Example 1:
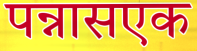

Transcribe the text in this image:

पन्नासएक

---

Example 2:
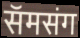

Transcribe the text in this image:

सॅमसंग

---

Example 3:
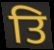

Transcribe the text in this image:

उि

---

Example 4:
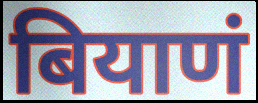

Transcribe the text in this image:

बियाणं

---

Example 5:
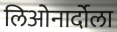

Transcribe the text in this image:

लिओनार्दोला